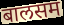
बालसम